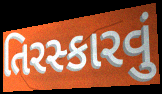
તિરસ્કારવું